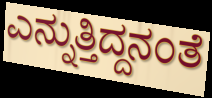
ಎನ್ನುತ್ತಿದ್ದನಂತೆ